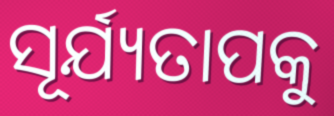
ସୂର୍ଯ୍ୟତାପକୁ